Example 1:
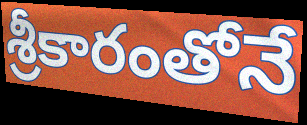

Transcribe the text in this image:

శ్రీకారంతోనే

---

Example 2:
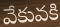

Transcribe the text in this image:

వేకువకి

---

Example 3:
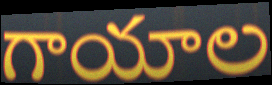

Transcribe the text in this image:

గాయాల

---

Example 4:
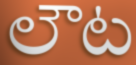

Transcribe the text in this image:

లౌట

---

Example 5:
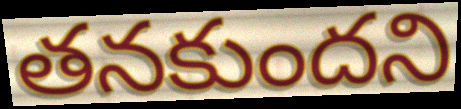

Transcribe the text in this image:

తనకుందని